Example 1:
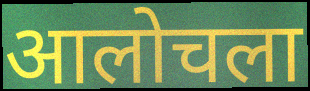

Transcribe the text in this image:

आलोचला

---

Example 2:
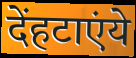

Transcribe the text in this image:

देंहटाएंये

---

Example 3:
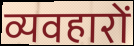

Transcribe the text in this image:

व्यवहारों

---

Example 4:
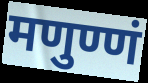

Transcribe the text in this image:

मणुण्णं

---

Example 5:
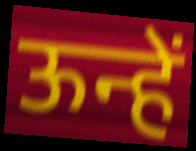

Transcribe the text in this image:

ऊन्हें